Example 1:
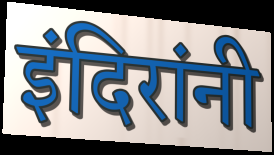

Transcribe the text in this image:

इंदिरांनी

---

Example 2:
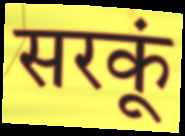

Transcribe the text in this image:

सरकूं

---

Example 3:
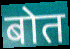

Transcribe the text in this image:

बोत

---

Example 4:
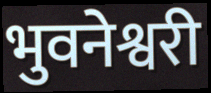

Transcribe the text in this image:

भुवनेश्वरी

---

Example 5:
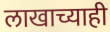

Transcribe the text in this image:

लाखाच्याही